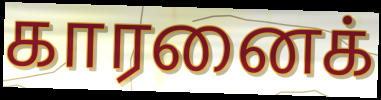
காரனைக்